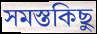
সমস্তকিছু